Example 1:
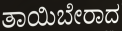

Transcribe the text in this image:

ತಾಯಿಬೇರಾದ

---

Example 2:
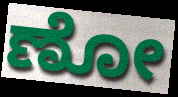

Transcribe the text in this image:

ಣೋ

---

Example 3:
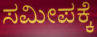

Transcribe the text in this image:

ಸಮೀಪಕ್ಕೆ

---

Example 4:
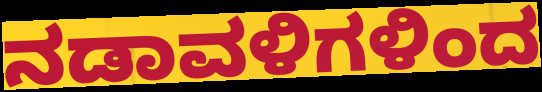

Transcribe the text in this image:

ನಡಾವಳಿಗಳಿಂದ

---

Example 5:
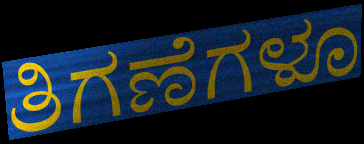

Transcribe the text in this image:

ತಿಗಣೆಗಳೂ